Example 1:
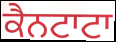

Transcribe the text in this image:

ਕੈਨਟਾਟਾ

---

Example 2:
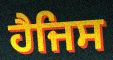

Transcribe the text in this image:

ਹੈਜਿਸ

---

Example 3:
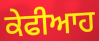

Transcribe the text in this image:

ਕੇਫੀਆਹ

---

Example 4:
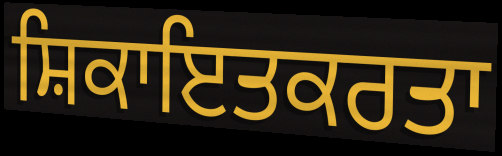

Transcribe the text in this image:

ਸ਼ਿਕਾਇਤਕਰਤਾ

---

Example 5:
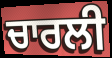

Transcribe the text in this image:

ਚਾਰਲੀ